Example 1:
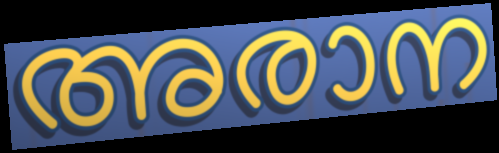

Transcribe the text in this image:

അരാന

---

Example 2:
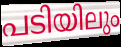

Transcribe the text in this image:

പടിയിലും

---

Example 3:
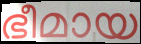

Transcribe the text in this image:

ഭീമായ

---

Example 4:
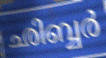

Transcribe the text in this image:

ഛിബ്ബർ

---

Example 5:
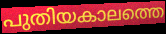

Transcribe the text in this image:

പുതിയകാലത്തെ